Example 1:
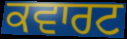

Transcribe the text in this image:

ਕਵਾਰਟ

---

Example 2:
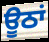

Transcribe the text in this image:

ਊਠਾਂ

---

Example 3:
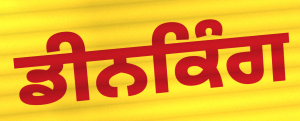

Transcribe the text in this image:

ਡੀਨਕਿੰਗ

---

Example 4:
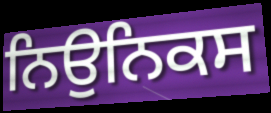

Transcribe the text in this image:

ਨਿਉਨਿਕਸ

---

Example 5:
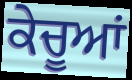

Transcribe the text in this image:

ਕੇਚੂਆਂ